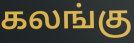
கலங்கு